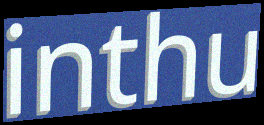
inthu